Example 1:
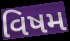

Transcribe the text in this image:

વિષમ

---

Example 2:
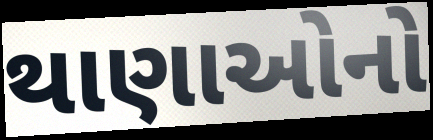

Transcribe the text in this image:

થાણાઓનો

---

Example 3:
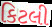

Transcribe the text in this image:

કિટલી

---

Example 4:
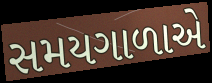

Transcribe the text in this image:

સમયગાળાએ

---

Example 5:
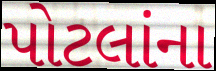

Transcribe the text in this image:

પોટલાંના